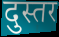
दुस्तर